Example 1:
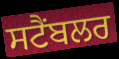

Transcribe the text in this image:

ਸਟੈਂਬਲਰ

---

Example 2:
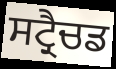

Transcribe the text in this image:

ਸਟ੍ਰੈਚਡ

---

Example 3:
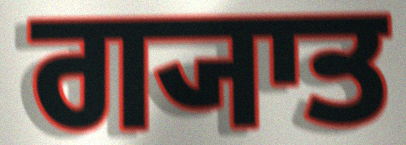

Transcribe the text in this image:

ਗ੍ਯਾਤ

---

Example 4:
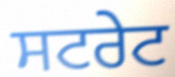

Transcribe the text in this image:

ਸਟਰੇਟ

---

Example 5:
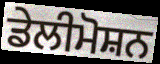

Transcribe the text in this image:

ਡੇਲੀਮੋਸ਼ਨ